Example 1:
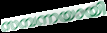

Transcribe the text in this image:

സമ്പന്നയായി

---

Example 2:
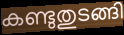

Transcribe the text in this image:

കണ്ടുതുടങ്ങി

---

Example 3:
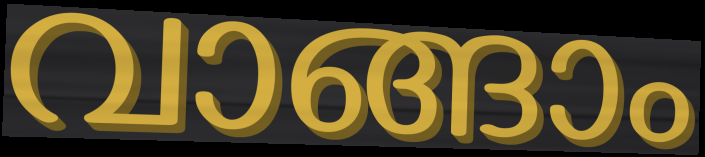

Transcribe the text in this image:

വാങ്ങാം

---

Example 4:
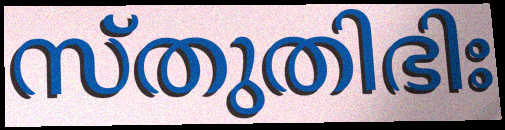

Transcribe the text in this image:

സ്തുതിഭിഃ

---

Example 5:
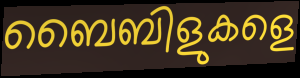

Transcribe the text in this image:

ബൈബിളുകളെ